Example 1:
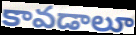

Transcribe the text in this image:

కావడాలూ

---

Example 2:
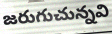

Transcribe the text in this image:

జరుగుచున్నవి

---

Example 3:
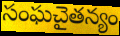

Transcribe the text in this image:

సంఘచైతన్యం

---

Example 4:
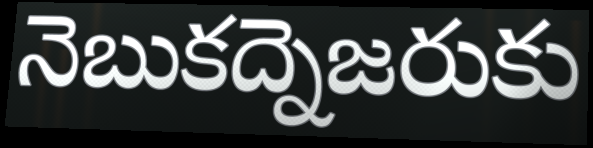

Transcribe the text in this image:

నెబుకద్నెజరుకు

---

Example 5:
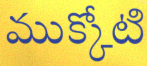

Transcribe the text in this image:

ముక్కోటి